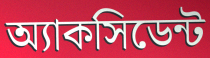
অ্যাকসিডেন্ট